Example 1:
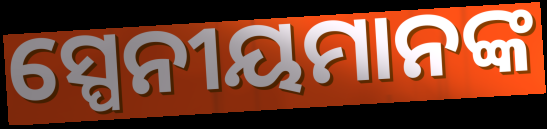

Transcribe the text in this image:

ସ୍ପେନୀୟମାନଙ୍କ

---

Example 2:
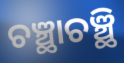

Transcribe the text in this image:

ଚଞ୍ଛାଚଞ୍ଛି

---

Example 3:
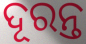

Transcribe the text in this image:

ଦୂରନ୍ତ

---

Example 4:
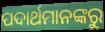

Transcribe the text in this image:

ପଦାର୍ଥମାନଙ୍କରୁ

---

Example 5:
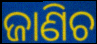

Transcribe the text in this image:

ଜାଣିଚ